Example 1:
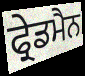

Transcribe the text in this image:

ਫ੍ਰੇਡਮੈਨ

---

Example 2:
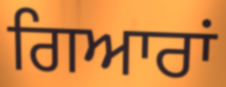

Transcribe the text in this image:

ਗਿਆਰਾਂ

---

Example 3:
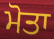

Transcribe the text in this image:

ਮੋਤਾ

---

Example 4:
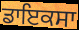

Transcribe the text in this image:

ਡਾਇਕਸਾ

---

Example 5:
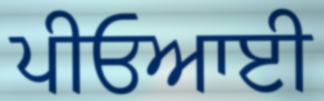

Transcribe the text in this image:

ਪੀਓਆਈ